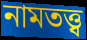
নামতত্ত্ব